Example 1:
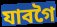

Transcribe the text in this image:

যাবগৈ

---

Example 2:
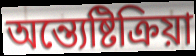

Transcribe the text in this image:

অন্ত্যেষ্টিক্ৰিয়া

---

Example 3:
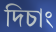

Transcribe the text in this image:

দিচাং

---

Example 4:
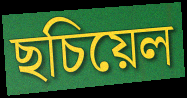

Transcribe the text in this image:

ছচিয়েল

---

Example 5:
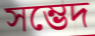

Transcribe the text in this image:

সম্ভেদ